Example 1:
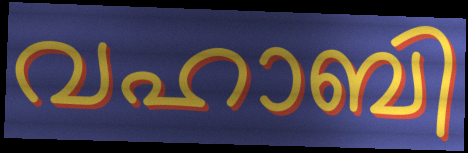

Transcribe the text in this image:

വഹാബി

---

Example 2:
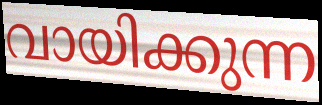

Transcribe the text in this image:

വായിക്കുന്ന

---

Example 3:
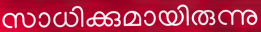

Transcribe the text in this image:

സാധിക്കുമായിരുന്നു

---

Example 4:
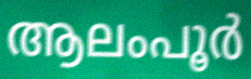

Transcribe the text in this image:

ആലംപൂർ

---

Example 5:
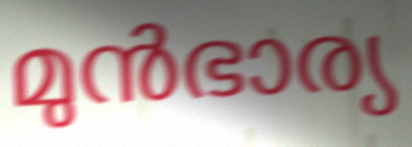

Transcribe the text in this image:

മുൻഭാര്യ